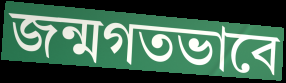
জন্মগতভাবে